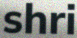
shri